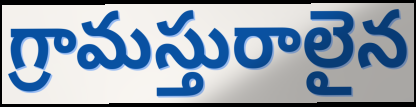
గ్రామస్తురాలైన